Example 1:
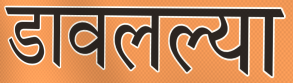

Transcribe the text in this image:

डावलल्या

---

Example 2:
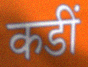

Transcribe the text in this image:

कडीं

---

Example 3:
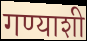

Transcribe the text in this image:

गण्याशी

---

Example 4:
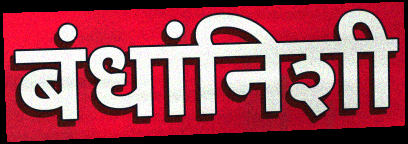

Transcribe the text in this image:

बंधांनिशी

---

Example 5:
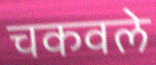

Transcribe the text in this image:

चकवले